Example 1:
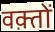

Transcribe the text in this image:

वक़्तों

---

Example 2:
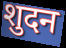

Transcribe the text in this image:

शुदन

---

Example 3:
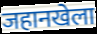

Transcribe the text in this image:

जहानखेला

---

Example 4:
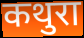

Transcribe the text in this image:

कथुरा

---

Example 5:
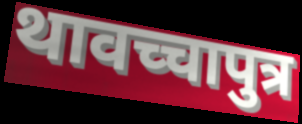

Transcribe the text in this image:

थावच्चापुत्र